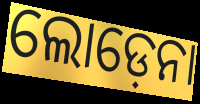
ଲୋଡ଼େନା